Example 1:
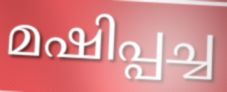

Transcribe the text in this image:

മഷിപ്പച്ച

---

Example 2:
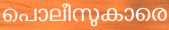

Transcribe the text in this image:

പൊലീസുകാരെ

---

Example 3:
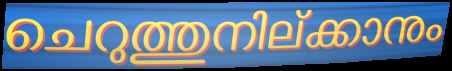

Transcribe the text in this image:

ചെറുത്തുനില്ക്കാനും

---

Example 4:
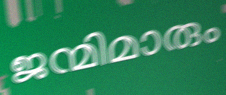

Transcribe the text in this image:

ജന്മിമാരും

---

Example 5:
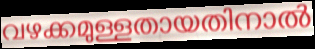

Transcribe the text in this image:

വഴക്കമുള്ളതായതിനാൽ